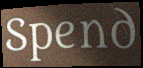
Spend